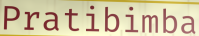
Pratibimba